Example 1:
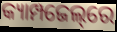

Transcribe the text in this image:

କ୍ୟାମ୍ପଜେଲ୍‌ରେ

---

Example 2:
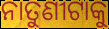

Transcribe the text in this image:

ନାତୁଣୀଟାକୁ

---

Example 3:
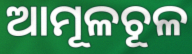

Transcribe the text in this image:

ଆମୂଳଚୂଳ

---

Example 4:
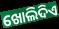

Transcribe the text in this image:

ଖୋଲିଦିଏ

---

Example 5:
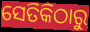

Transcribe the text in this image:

ସେତିକିଠାରୁ